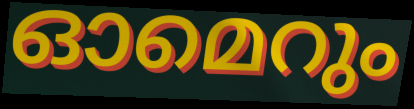
ഓമെറും